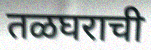
तळघराची